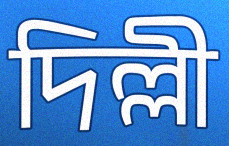
দিল্লী